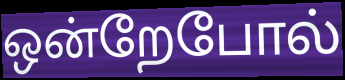
ஒன்றேபோல்